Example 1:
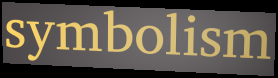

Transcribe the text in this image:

symbolism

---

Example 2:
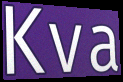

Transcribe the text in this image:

Kva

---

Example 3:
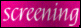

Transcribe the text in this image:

screening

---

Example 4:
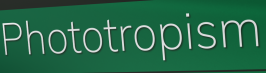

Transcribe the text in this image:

Phototropism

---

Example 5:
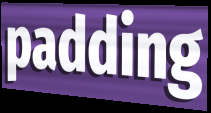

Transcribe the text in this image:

padding